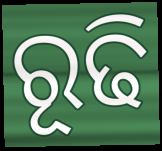
ରୂଢି